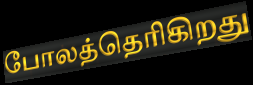
போலத்தெரிகிறது